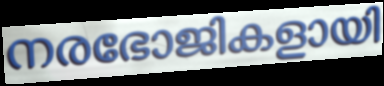
നരഭോജികളായി